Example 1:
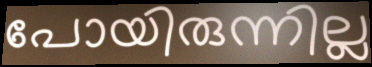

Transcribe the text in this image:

പോയിരുന്നില്ല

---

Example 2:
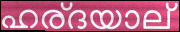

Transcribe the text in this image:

ഹര്ദയാല്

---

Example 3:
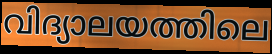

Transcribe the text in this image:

വിദ്യാലയത്തിലെ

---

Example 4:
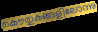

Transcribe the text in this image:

കൌതുകങ്ങളിലോന്നു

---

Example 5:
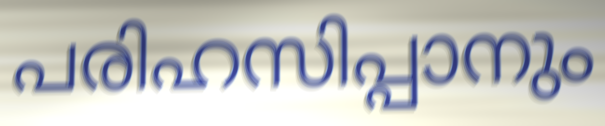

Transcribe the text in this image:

പരിഹസിപ്പാനും